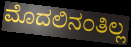
ಮೊದಲಿನಂತಿಲ್ಲ